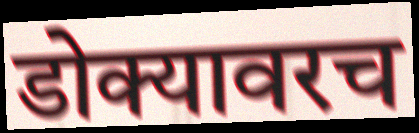
डोक्यावरच